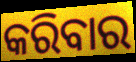
କରିବାର